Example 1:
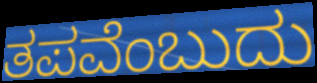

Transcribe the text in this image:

ತಪವೆಂಬುದು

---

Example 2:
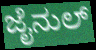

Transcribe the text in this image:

ಜೈನುಲ್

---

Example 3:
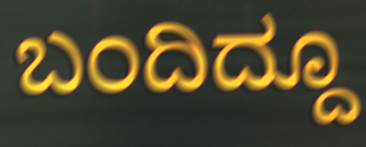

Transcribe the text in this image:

ಬಂದಿದ್ದೂ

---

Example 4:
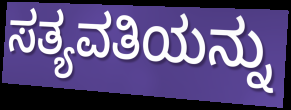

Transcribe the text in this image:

ಸತ್ಯವತಿಯನ್ನು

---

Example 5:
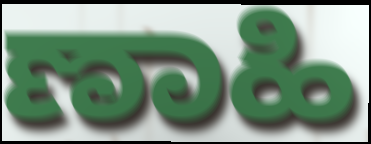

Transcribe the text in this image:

ಣಾಹಿ